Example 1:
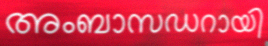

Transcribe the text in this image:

അംബാസഡറായി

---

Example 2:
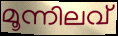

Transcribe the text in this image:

മൂന്നിലവ്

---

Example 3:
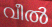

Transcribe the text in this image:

വീൽ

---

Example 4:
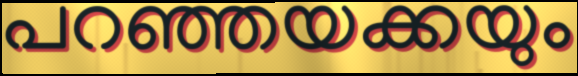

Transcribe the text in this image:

പറഞ്ഞയക്കയും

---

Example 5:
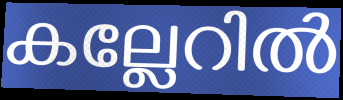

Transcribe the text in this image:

കല്ലേറിൽ